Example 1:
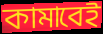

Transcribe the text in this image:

কামাবেই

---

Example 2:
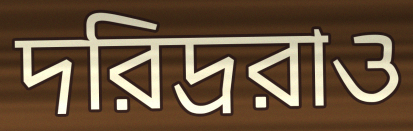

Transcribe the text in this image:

দরিদ্ররাও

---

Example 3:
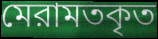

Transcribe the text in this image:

মেরামতকৃত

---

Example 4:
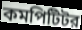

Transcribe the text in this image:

কমপিটিটর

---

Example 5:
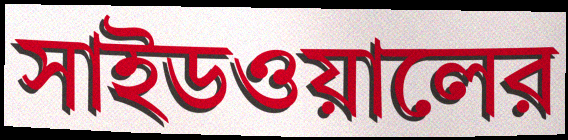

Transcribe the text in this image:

সাইডওয়ালের